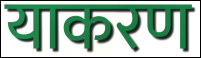
याकरण